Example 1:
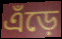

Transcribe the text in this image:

এঁড়ে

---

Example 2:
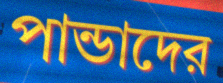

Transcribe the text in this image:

পান্ডাদের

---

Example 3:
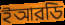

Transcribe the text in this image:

ইআরডি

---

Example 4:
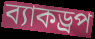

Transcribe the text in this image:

ব্যাকড্রপ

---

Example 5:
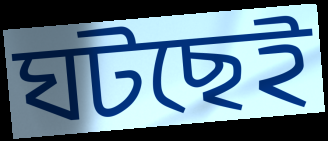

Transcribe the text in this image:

ঘটছেই